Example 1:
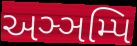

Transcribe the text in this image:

અઞ્ઞમ્પિ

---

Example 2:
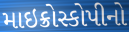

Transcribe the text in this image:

માઇક્રોસ્કોપીનો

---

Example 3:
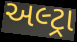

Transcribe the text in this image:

અલ્ટ્રા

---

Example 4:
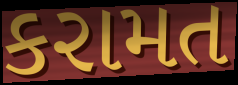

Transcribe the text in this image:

કરામત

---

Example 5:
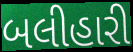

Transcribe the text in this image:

બલીહારી